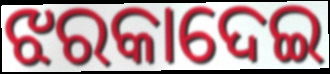
ଝରକାଦେଇ